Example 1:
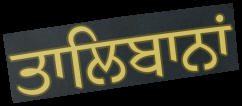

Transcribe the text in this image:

ਤਾਲਿਬਾਨਾਂ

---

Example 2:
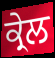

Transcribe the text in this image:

ਕ੍ਰੇਲ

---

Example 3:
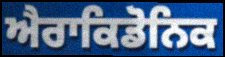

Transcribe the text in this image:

ਐਰਾਕਿਡੋਨਿਕ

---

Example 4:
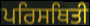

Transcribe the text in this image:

ਪਰਿਸਥਿਤੀ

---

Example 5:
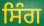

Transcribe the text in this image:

ਸਿੰਗ